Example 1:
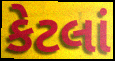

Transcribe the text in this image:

કેટલાં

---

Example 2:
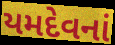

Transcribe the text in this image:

યમદેવનાં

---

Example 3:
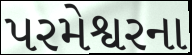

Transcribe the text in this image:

પરમેશ્વરના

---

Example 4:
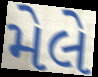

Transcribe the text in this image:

મેલે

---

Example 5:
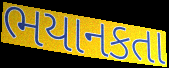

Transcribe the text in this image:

ભયાનકતા